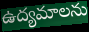
ఉద్యమాలను